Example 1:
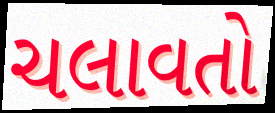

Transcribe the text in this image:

ચલાવતો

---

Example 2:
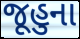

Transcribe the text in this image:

જૂહુના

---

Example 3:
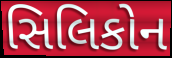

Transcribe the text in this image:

સિલિકોન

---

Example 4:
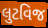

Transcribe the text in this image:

લુટવિજ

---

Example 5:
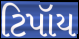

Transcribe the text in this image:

ટિપૉય